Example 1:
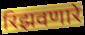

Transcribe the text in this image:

रिझवणारे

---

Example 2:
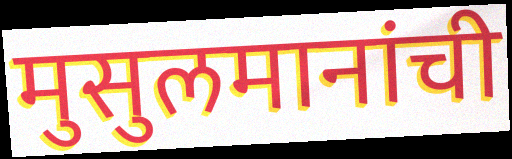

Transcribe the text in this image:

मुसुलमानांची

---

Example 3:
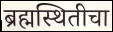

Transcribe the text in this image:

ब्रह्मस्थितीचा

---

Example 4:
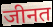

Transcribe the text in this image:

जीनत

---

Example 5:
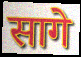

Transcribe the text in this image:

सागे